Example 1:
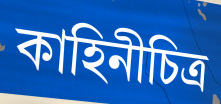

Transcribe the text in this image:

কাহিনীচিত্র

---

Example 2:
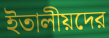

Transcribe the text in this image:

ইতালীয়দের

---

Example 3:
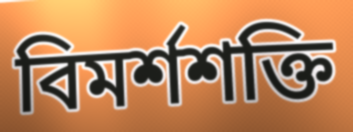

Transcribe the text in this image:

বিমর্শশক্তি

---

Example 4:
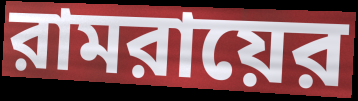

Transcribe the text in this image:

রামরায়ের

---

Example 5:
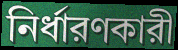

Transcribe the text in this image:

নির্ধারণকারী